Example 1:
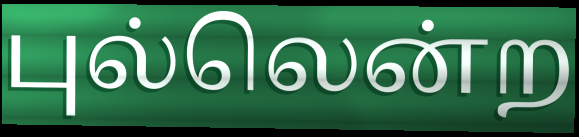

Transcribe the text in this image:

புல்லென்ற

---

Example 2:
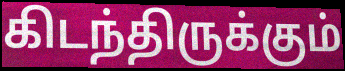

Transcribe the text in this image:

கிடந்திருக்கும்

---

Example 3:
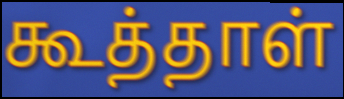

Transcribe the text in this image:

கூத்தாள்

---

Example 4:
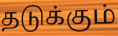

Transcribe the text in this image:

தடுக்கும்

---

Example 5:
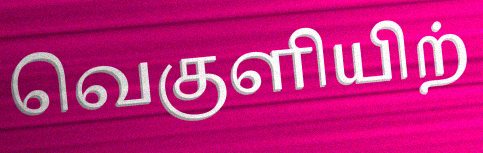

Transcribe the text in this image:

வெகுளியிற்